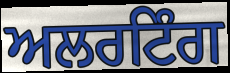
ਅਲਰਟਿੰਗ